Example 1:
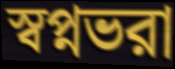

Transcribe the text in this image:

স্বপ্নভরা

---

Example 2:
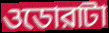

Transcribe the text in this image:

ওডোরাটা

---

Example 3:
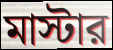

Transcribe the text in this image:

মাস্টার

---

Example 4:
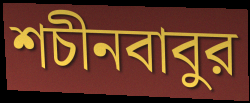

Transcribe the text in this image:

শচীনবাবুর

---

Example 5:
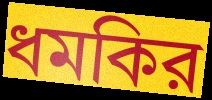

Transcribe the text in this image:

ধমকির